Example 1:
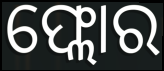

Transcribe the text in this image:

ଫ୍ଲୋର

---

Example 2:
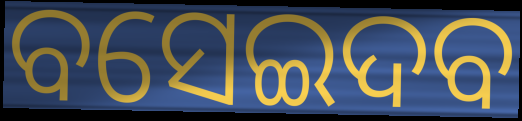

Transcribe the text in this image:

ବସେଇଦବ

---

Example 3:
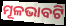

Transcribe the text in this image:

ମୂଳଭାବଟି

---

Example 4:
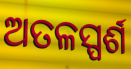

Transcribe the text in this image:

ଅତଳସ୍ପର୍ଶ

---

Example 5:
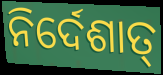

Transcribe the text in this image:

ନିର୍ଦେଶାତ୍